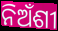
ନିଅଁଶୀ